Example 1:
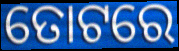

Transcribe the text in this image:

ତୋଟରେ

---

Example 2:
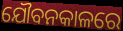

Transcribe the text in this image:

ଯୌବନକାଳରେ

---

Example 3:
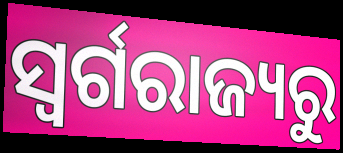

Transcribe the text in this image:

ସ୍ବର୍ଗରାଜ୍ୟରୁ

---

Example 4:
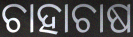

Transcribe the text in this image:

ଚାହାଚାଷ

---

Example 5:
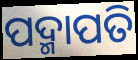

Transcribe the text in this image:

ପଦ୍ମାପତି